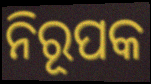
ନିରୂପକ